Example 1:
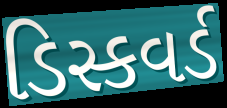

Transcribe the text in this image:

ડિસ્કવર્ડ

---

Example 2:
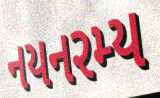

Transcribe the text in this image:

નયનરમ્ય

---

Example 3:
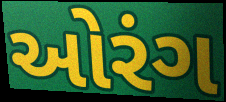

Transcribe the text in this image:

ઓરંગ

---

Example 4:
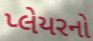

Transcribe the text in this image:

પ્લેયરનો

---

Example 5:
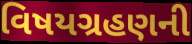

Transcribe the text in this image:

વિષયગ્રહણની